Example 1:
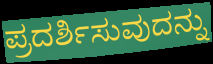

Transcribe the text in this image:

ಪ್ರದರ್ಶಿಸುವುದನ್ನು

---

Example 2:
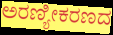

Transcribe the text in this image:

ಅರಣ್ಯೀಕರಣದ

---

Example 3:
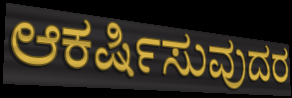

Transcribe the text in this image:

ಆಕರ್ಷಿಸುವುದರ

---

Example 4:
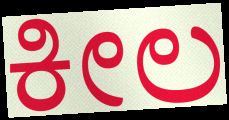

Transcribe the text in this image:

ಕೀಲ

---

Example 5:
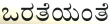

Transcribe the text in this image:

ಒರತೆಯಂತೆ